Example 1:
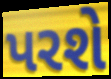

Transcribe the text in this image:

પરશે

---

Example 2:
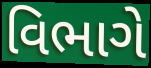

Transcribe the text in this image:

વિભાગે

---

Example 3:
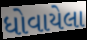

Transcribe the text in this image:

ધોવાયેલા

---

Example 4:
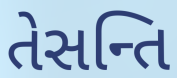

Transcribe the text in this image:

તેસન્તિ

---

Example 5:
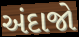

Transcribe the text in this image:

અંદાજો